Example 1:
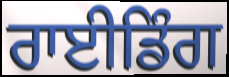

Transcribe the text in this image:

ਰਾਈਡਿੰਗ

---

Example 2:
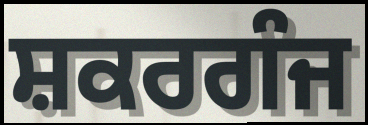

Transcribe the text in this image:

ਸ਼ਕਰਗੰਜ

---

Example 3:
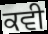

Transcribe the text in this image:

ਕਵੀ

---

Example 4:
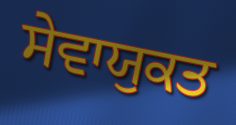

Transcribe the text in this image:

ਸੇਵਾਯੁਕਤ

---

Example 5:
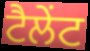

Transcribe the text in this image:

ਟੈਲੇੰਟ